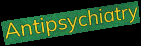
Antipsychiatry